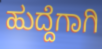
ಹುದ್ದೆಗಾಗಿ